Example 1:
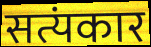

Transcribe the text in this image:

सत्यंकार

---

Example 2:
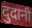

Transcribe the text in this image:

दुदानी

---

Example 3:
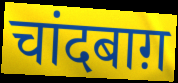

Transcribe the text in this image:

चांदबाग़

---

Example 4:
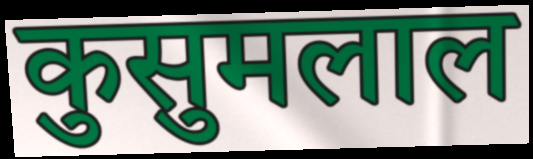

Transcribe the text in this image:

कुसुमलाल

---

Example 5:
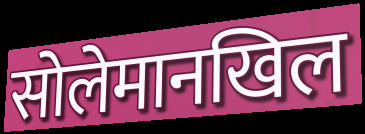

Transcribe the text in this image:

सोलेमानखिल